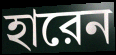
হারেন